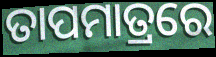
ତାପମାତ୍ରରେ